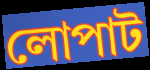
লোপাট